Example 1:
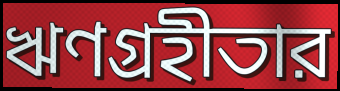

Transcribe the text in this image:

ঋণগ্রহীতার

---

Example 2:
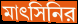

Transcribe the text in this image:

মাৎসিনির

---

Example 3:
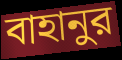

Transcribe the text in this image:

বাহানুর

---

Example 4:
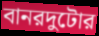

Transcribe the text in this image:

বানরদুটোর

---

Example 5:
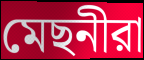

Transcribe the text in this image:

মেছনীরা